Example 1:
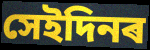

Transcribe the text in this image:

সেইদিনৰ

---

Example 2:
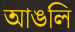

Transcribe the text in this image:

আঙলি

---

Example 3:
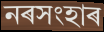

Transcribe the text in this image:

নৰসংহাৰ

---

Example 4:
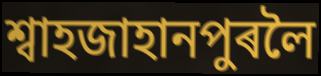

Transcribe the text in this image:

শ্বাহজাহানপুৰলৈ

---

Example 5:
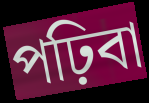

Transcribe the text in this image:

পঢ়িবা